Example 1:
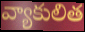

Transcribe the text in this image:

వ్యాకులిత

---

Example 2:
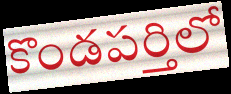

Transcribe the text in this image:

కొండపర్తిలో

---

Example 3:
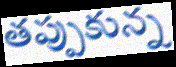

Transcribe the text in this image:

తప్పుకున్న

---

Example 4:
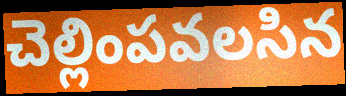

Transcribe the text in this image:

చెల్లింపవలసిన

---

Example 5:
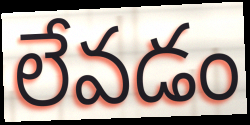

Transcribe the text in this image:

లేవడం